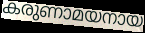
കരുണാമയനായ